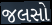
જલસો